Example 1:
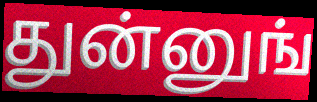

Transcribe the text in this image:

துன்னுங்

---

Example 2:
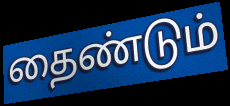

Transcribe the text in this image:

தைண்டும்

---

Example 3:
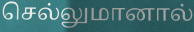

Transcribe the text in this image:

செல்லுமானால்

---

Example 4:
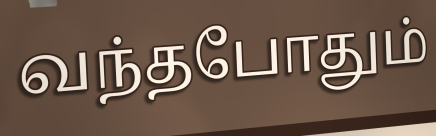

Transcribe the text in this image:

வந்தபோதும்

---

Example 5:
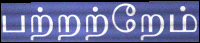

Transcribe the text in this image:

பற்றற்றேம்